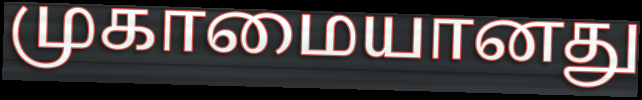
முகாமையானது